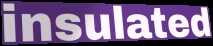
insulated